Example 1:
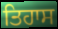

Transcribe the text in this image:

ਤਿਹਾਸ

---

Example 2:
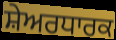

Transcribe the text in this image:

ਸ਼ੇਅਰਧਾਰਕ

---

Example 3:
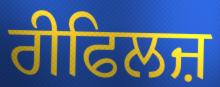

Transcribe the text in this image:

ਰੀਫਿਲਜ਼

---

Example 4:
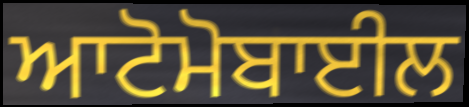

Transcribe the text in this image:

ਆਟੋਮੋਬਾਈਲ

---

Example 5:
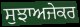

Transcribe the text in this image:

ਸੁਝਾਅਜੇਕਰ